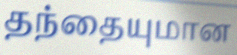
தந்தையுமான